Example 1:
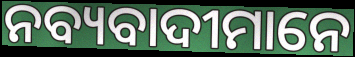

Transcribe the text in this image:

ନବ୍ୟବାଦୀମାନେ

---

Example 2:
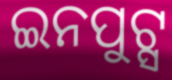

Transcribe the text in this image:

ଇନପୁଟ୍ସ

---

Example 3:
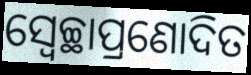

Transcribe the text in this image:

ସ୍ୱେଚ୍ଛାପ୍ରଣୋଦିତ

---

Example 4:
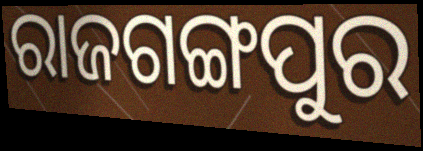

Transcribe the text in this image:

ରାଜଗଙ୍ଗପୁର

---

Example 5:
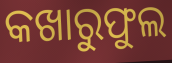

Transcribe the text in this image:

କଖାରୁଫୁଲ